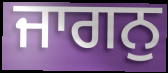
ਜਾਗਨੁ